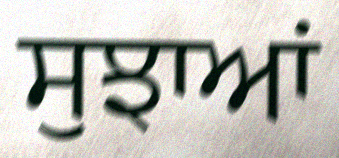
ਸੁਝਾਆਂ